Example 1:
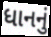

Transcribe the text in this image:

ધાનનું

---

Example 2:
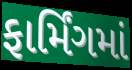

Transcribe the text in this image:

ફાર્મિંગમાં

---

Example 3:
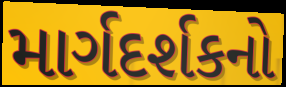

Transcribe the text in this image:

માર્ગદર્શકનો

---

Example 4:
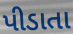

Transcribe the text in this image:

પીડાતા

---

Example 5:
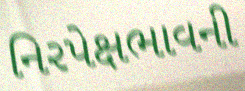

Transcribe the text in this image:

નિરપેક્ષભાવની